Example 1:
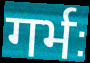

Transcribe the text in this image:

गर्भः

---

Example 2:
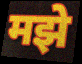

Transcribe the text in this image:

मझे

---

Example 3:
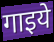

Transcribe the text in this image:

गाइये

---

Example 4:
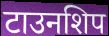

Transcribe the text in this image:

टाउनशिप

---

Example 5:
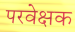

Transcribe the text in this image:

परवेक्षक